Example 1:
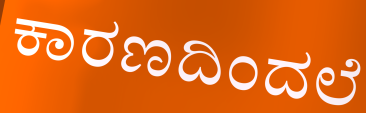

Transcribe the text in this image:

ಕಾರಣದಿಂದಲೆ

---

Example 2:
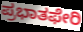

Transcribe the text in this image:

ಪ್ರಭಾತಫೇರಿ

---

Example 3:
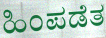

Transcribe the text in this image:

ಹಿಂಪಡೆತ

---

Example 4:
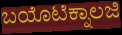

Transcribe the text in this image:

ಬಯೊಟೆಕ್ನಾಲಜಿ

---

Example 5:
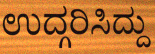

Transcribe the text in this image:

ಉದ್ಗರಿಸಿದ್ದು